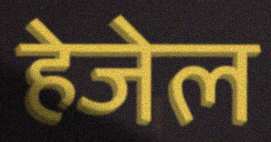
हेजेल